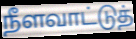
நீளவாட்டுத்